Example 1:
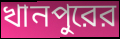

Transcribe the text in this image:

খানপুরের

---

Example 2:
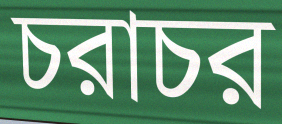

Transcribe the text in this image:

চরাচর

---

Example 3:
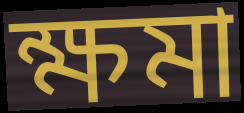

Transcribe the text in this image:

ক্ষমা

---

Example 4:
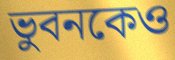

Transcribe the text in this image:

ভুবনকেও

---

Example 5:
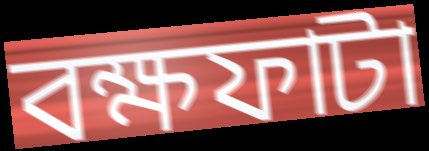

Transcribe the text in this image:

বক্ষফাটা